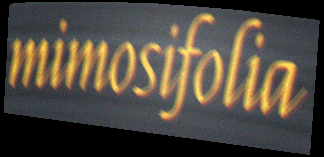
mimosifolia